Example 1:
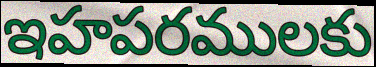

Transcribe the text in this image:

ఇహపరములకు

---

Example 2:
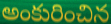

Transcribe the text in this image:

అంకురించిన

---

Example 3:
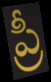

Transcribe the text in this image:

ప్రీ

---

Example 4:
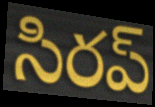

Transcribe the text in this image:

సిరప్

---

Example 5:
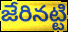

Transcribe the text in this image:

జేరినట్టి